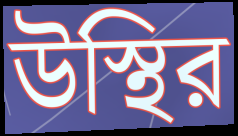
উস্থির